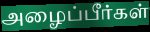
அழைப்பீர்கள்